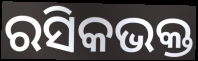
ରସିକଭକ୍ତ